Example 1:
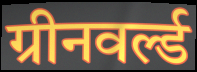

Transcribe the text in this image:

ग्रीनवर्ल्ड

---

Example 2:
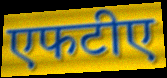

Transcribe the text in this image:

एफटीए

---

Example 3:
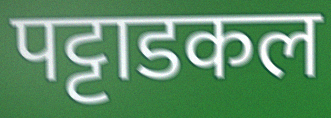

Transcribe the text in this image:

पट्टाडकल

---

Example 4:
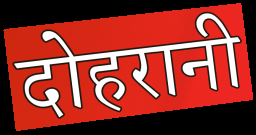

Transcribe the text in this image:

दोहरानी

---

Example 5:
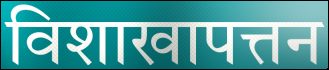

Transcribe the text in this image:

विशाखापत्तन